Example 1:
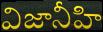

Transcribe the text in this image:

విజానీహి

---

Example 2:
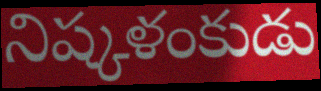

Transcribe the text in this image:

నిష్కళంకుడు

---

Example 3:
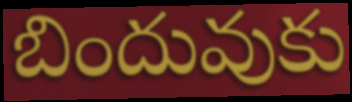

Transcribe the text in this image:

బిందువుకు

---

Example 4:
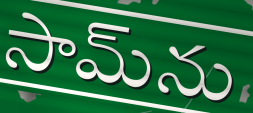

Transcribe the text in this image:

సామ్‌ను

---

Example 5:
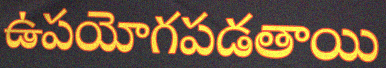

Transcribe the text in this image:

ఉపయోగపడతాయి